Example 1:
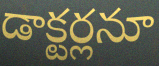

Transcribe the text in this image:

డాక్టర్లనూ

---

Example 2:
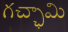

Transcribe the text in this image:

గచ్ఛామి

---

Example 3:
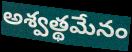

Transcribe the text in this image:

అశ్వత్థమేనం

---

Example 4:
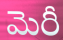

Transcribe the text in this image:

మెరీ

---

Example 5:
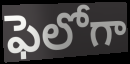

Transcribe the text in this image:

ఫెలోగా